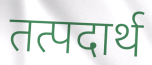
तत्पदार्थ